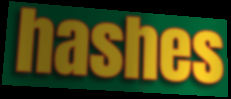
hashes